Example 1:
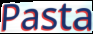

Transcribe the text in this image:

Pasta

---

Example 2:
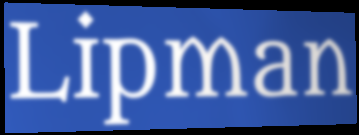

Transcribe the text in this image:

Lipman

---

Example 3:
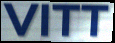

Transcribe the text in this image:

VITT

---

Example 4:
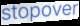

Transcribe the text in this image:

stopover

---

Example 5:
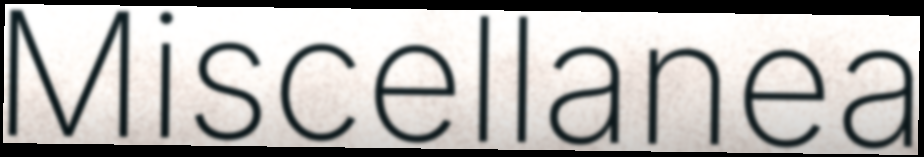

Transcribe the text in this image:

Miscellanea